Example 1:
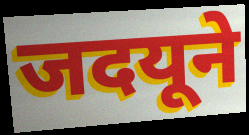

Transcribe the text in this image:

जदयूने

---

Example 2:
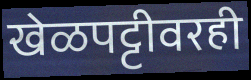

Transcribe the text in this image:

खेळपट्टीवरही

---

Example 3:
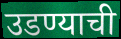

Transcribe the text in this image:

उडण्याची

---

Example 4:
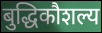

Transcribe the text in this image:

बुद्धिकौशल्य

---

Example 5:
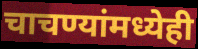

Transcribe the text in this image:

चाचण्यांमध्येही